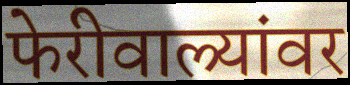
फेरीवाल्यांवर